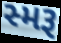
સ્મરૂ